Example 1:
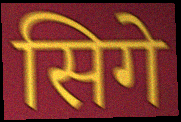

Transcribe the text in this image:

सिगे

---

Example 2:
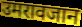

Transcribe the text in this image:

उमरावजान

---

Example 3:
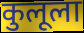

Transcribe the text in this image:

कुलूला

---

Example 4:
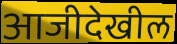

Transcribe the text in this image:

आजीदेखील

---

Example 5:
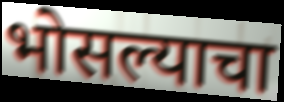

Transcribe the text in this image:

भोसल्याचा